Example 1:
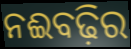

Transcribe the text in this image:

ନଈବଢ଼ିର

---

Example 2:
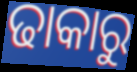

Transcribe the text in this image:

ଢାକାରୁ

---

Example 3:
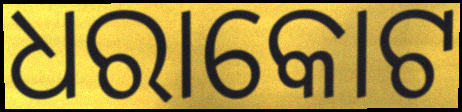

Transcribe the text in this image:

ଧରାକୋଟ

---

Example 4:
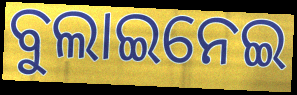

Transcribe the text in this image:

ବୁଲାଇନେଇ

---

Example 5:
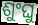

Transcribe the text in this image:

ଶୁଂଘୁ